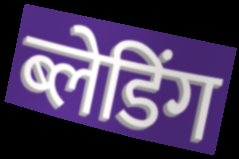
ब्लेडिंग